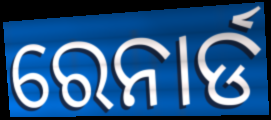
ରେନାର୍ଡ